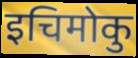
इचिमोकु